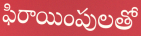
ఫిరాయింపులతో